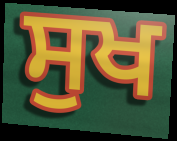
ਸੁਖ